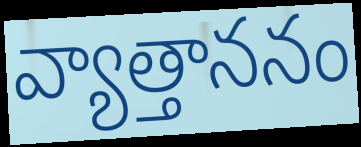
వ్యాత్తాననం